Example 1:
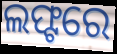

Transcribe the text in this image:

ଲଫ୍ଟରେ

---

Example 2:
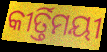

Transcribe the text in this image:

କୀର୍ତ୍ତିମୟୀ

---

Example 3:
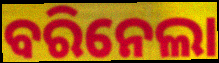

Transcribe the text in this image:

ବରିନେଲା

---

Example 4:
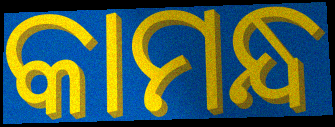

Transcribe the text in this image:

କାମନ୍ଧ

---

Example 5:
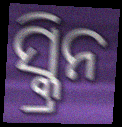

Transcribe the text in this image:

ସ୍କ୍ରିନ